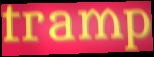
tramp